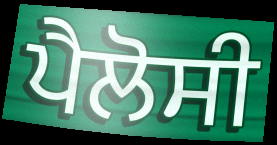
ਪੈਲੋਸੀ